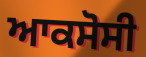
ਆਕਸੋਸੀ